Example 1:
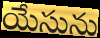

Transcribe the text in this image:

యేసును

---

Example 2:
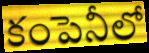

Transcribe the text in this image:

కంపెనీలో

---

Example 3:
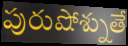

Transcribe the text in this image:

పురుషోశ్నుతే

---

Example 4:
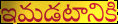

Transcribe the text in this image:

ఇమడటానికి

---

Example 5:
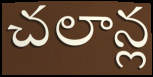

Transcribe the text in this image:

చలాన్ల